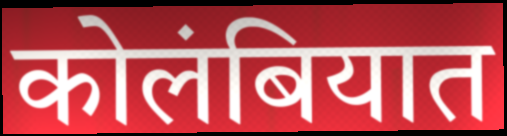
कोलंबियात